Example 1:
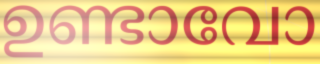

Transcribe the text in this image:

ഉണ്ടാവോ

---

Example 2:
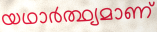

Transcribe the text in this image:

യഥാർത്ഥ്യമാണ്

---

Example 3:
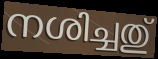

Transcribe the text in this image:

നശിച്ചതു്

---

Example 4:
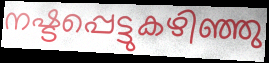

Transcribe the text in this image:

നഷ്ടപ്പെട്ടുകഴിഞ്ഞു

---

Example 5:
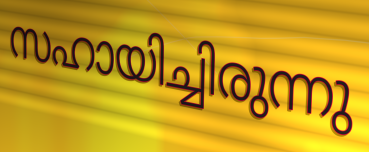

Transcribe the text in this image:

സഹായിച്ചിരുന്നു